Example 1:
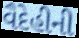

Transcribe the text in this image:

વૈદેહીની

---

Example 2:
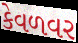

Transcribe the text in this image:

કેવળવર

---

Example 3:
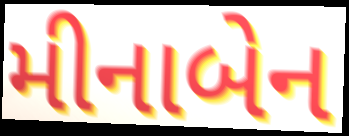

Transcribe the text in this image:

મીનાબેન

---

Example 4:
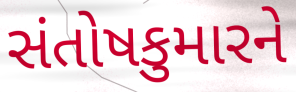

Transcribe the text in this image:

સંતોષકુમારને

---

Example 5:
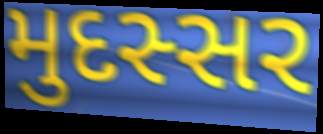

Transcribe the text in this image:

મુદસ્સર